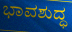
ಭಾವಶುದ್ಧ